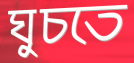
ঘুচতে